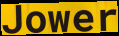
Jower